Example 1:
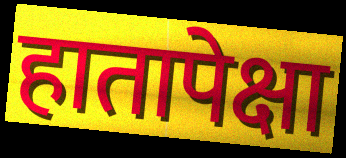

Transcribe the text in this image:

हातापेक्षा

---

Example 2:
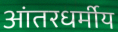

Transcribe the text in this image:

आंतरधर्मीय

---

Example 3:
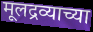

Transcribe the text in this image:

मूलद्रव्याच्या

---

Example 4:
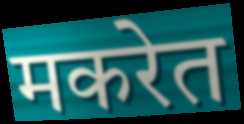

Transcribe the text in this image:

मकरेत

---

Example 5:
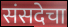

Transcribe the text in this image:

संसदेचा